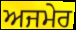
ਅਜਮੇਰ